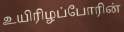
உயிரிழப்போரின்